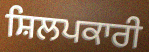
ਸ਼ਿਲਪਕਾਰੀ